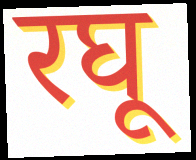
रघू